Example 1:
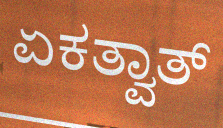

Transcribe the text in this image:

ಏಕತ್ವಾತ್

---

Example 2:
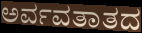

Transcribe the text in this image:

ಅರ್ವವತಾತದ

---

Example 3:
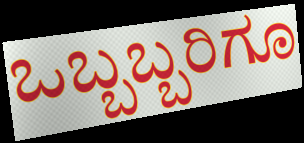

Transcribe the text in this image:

ಒಬ್ಬಬ್ಬರಿಗೂ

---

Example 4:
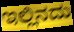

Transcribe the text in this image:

ಇಲ್ಲಿನದು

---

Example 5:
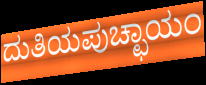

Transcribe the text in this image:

ದುತಿಯಪುಚ್ಛಾಯಂ